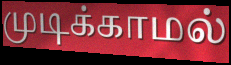
முடிக்காமல்